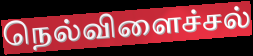
நெல்விளைச்சல்